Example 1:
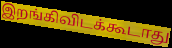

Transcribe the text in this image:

இறங்கிவிடக்கூடாது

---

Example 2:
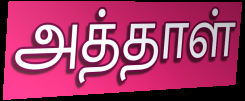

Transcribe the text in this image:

அத்தாள்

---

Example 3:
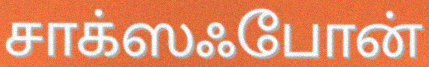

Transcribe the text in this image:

சாக்ஸஃபோன்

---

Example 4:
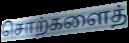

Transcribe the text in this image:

சொற்களைத்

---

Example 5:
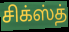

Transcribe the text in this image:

சிக்ஸ்த்